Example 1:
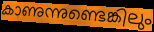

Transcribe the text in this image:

കാണുന്നുണ്ടെങ്കിലും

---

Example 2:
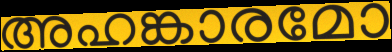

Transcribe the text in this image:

അഹങ്കാരമോ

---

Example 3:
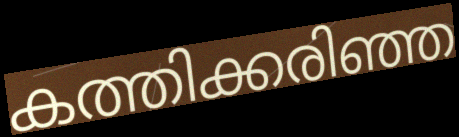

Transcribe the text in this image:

കത്തിക്കരിഞ്ഞ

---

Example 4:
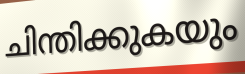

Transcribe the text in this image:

ചിന്തിക്കുകയും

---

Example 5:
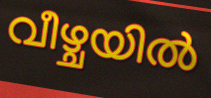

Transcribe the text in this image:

വീഴ്ചയിൽ